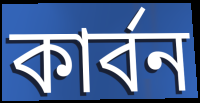
কার্বন